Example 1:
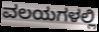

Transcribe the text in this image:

ವಲಯಗಳಲ್ಲಿ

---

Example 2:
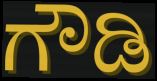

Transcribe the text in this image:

ಗೌಡಿ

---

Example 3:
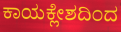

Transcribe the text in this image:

ಕಾಯಕ್ಲೇಶದಿಂದ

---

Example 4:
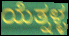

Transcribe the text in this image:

ಯೆತ್ನಳ್ಳ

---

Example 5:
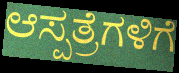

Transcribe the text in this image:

ಆಸ್ಪತ್ರೆಗಳಿಗೆ